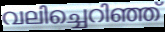
വലിച്ചെറിഞ്ഞ്